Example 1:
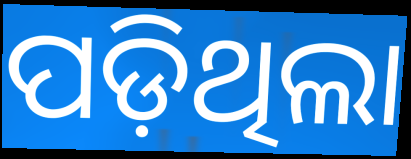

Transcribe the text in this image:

ପଡ଼ିଥିଲା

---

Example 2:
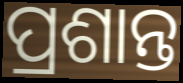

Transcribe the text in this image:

ପ୍ରଶାନ୍ତ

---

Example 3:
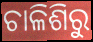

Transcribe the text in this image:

ଚାଳିଶିରୁ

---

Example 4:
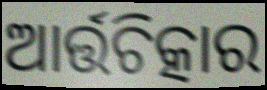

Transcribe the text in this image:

ଆର୍ତ୍ତଚିତ୍କାର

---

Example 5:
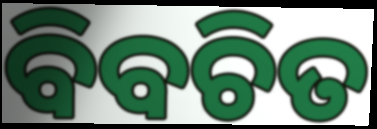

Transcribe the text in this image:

ବିବଚିତ